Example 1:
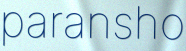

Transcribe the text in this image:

paransho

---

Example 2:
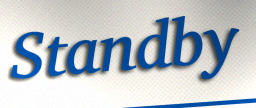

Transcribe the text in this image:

Standby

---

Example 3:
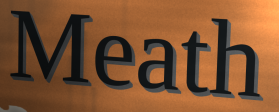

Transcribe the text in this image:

Meath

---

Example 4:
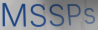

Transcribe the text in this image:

MSSPs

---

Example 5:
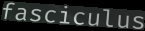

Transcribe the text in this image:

fasciculus